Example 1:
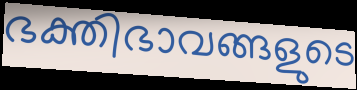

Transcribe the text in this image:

ഭക്തിഭാവങ്ങളുടെ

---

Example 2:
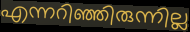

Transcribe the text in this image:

എന്നറിഞ്ഞിരുന്നില്ല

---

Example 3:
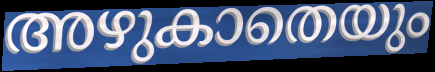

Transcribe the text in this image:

അഴുകാതെയും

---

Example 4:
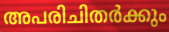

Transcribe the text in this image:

അപരിചിതർക്കും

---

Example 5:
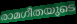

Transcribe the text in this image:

രാമഗീതയുടെ